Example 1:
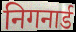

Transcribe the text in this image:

निगनार्ड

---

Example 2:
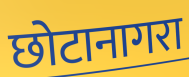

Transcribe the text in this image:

छोटानागरा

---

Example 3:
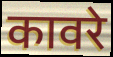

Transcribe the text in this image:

कावरे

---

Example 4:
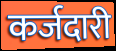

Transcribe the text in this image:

कर्जदारी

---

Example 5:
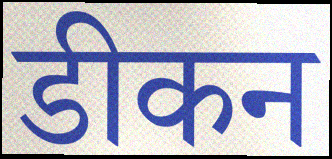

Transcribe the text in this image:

डीकन